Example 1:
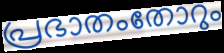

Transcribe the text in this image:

പ്രഭാതംതോറും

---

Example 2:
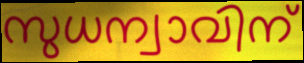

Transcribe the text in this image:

സുധന്വാവിന്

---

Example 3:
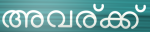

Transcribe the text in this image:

അവര്ക്ക്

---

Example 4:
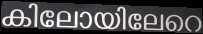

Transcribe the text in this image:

കിലോയിലേറെ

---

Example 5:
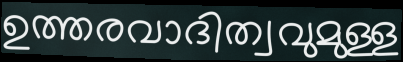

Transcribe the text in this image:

ഉത്തരവാദിത്വവുമുള്ള